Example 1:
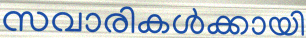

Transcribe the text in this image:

സവാരികൾക്കായി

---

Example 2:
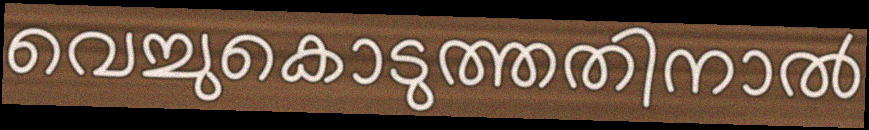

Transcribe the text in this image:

വെച്ചുകൊടുത്തതിനാൽ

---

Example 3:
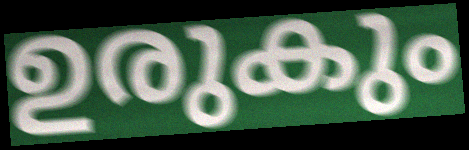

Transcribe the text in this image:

ഉരുകും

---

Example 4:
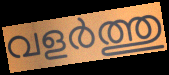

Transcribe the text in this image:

വളർത്തു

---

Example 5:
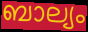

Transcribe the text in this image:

ബാല്യം